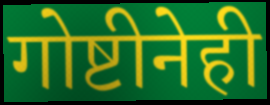
गोष्टीनेही